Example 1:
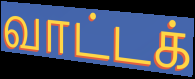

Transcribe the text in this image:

வாட்டக்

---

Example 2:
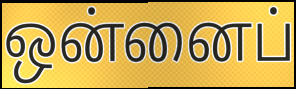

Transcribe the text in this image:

ஒன்னைப்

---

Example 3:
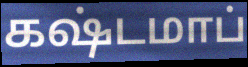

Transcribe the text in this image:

கஷ்டமாப்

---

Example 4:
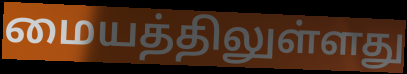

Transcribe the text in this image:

மையத்திலுள்ளது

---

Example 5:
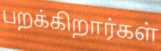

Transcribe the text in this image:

பறக்கிறார்கள்